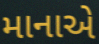
માનાએ